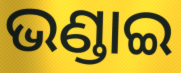
ଭଣ୍ଡାଇ